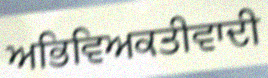
ਅਭਿਵਿਅਕਤੀਵਾਦੀ